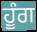
ਹੂੰਗ